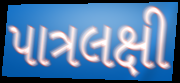
પાત્રલક્ષી